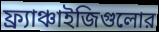
ফ্র্যাঞ্চাইজিগুলোর